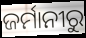
ଜର୍ମାନୀରୁ